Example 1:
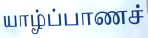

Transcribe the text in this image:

யாழ்ப்பாணச்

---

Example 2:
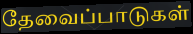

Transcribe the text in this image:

தேவைப்பாடுகள்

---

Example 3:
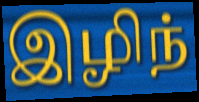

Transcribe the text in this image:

இழிந்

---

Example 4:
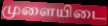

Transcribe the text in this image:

முளையிடை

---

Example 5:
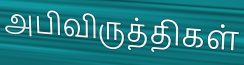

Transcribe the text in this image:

அபிவிருத்திகள்